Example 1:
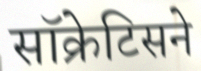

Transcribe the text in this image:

सॉक्रेटिसने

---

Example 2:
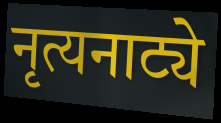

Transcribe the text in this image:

नृत्यनाट्ये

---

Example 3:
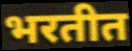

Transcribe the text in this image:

भरतीत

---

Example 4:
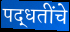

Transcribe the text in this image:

पद्धतींचे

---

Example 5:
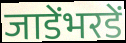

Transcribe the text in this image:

जाडेंभरडें